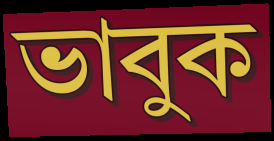
ভাবুক